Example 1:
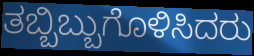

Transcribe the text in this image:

ತಬ್ಬಿಬ್ಬುಗೊಳಿಸಿದರು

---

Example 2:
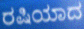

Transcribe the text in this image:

ರಷಿಯಾದ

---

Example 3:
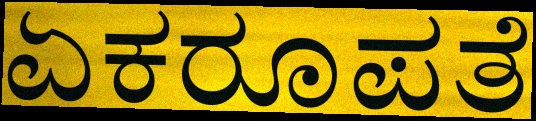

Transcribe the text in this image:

ಏಕರೂಪತೆ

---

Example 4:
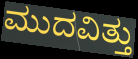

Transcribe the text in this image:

ಮುದವಿತ್ತು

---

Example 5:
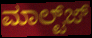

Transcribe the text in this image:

ಮಾಲ್ಟ್‌ಜ್